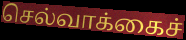
செல்வாக்கைச்